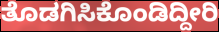
ತೊಡಗಿಸಿಕೊಂಡಿದ್ದೀರಿ